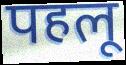
पहलू